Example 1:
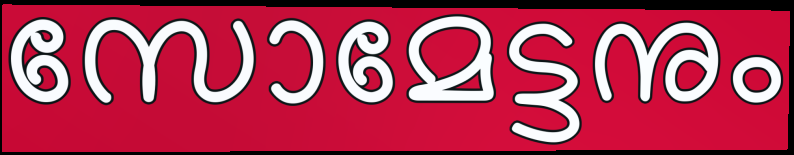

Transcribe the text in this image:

സോമേട്ടനും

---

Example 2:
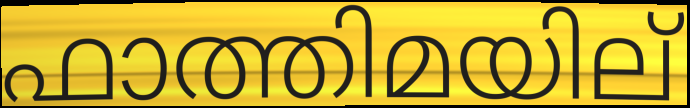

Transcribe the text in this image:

ഫാത്തിമയില്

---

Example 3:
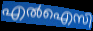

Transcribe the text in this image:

എൽഐസി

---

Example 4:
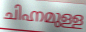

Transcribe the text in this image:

ചിഹ്നമുള്ള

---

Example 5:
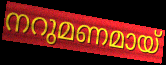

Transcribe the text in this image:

നറുമണമായ്